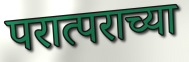
परात्पराच्या